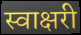
स्वाक्षरी